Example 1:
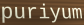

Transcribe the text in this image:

puriyum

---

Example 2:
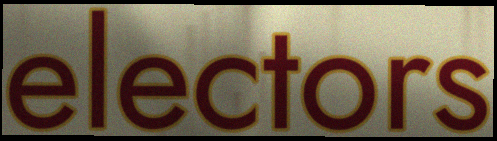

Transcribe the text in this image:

electors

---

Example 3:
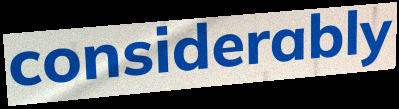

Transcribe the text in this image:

considerably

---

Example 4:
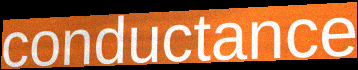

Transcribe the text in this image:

conductance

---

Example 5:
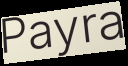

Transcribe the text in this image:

Payra